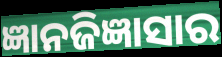
ଜ୍ଞାନଜିଜ୍ଞାସାର